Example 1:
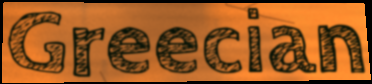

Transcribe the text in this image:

Greecian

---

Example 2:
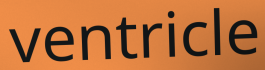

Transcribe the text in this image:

ventricle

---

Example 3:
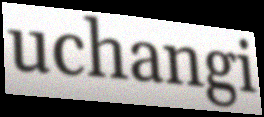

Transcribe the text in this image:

uchangi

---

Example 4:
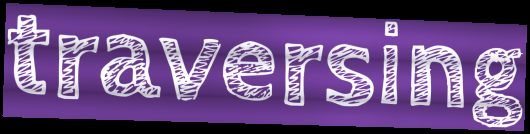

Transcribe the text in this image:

traversing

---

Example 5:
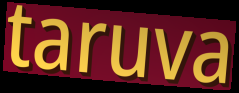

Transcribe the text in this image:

taruva